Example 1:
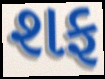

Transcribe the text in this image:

શફ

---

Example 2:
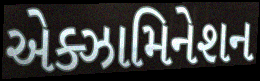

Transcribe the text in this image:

એક્ઝામિનેશન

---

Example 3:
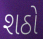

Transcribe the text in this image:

શઠો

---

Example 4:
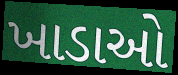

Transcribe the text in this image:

ખાડાઓ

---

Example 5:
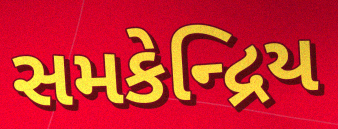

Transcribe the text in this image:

સમકેન્દ્રિય